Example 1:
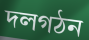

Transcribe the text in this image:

দলগঠন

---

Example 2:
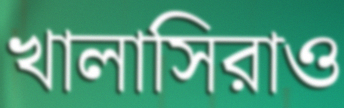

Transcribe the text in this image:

খালাসিরাও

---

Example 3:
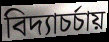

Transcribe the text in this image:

বিদ্যাচর্চায়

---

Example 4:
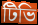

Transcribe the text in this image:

টিভি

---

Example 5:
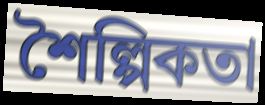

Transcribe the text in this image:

শৈল্পিকতা